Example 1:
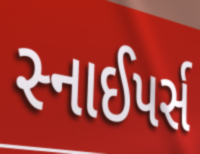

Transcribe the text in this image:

સ્નાઈપર્સ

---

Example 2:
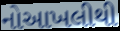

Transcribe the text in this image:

નોઆખલીથી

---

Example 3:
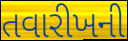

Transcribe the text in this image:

તવારીખની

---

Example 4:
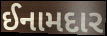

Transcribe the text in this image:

ઈનામદાર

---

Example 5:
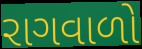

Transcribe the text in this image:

રાગવાળો